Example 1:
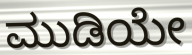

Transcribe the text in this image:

ಮುಡಿಯೇ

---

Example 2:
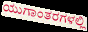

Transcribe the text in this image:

ಯುಗಾಂತರಗಳಲ್ಲಿ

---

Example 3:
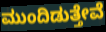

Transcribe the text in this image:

ಮುಂದಿಡುತ್ತೇವೆ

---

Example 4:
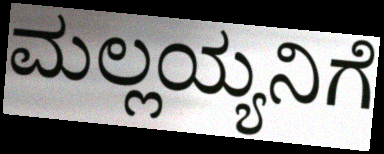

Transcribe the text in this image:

ಮಲ್ಲಯ್ಯನಿಗೆ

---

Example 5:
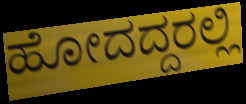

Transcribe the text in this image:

ಹೋದದ್ದರಲ್ಲಿ